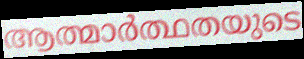
ആത്മാർത്ഥതയുടെ